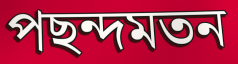
পছন্দমতন